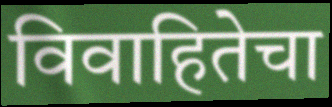
विवाहितेचा